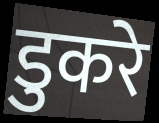
डुकरे